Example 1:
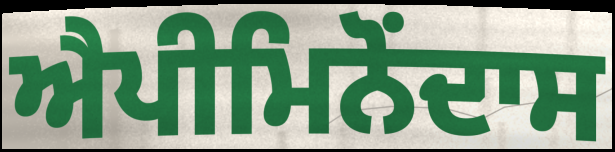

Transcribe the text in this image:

ਐਪੀਮਿਨੋਂਦਾਸ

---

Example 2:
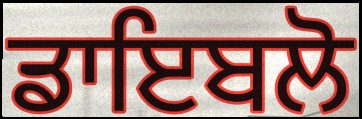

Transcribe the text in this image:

ਡਾਇਬਲੋ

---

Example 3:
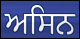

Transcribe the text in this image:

ਅਸਿਨ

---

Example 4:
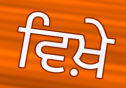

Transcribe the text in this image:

ਵਿਖ਼ੇ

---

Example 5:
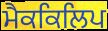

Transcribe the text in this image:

ਮੈਕਕਿਲਿਪ